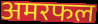
अमरफल